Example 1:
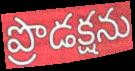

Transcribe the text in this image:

ప్రొడక్షను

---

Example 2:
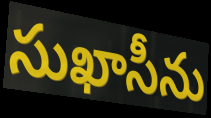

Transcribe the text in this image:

సుఖాసీను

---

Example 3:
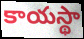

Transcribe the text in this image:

కాయస్థా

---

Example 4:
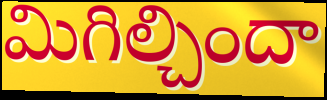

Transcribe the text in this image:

మిగిల్చిందా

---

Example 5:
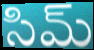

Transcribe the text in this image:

సిమ్